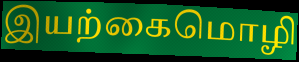
இயற்கைமொழி